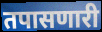
तपासणारी